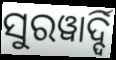
ସୁରୱାର୍ଦ୍ଦି